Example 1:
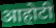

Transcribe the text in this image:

आहोटी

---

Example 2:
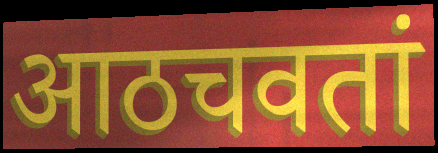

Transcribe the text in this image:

आठचवतां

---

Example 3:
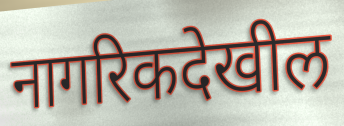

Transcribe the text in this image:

नागरिकदेखील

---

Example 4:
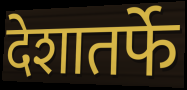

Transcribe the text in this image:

देशातर्फे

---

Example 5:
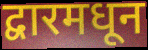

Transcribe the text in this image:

द्वारमधून